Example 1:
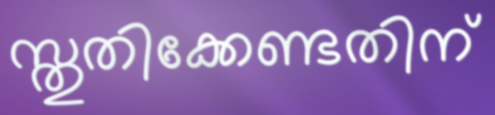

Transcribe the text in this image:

സ്തുതിക്കേണ്ടതിന്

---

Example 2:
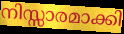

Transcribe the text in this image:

നിസ്സാരമാക്കി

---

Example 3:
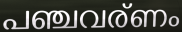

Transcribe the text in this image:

പഞ്ചവര്ണം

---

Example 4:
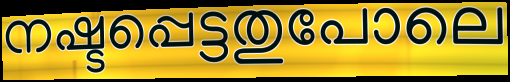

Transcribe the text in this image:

നഷ്ടപ്പെട്ടതുപോലെ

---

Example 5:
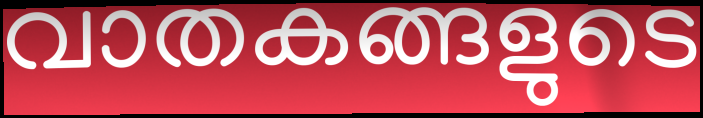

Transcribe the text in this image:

വാതകങ്ങളുടെ